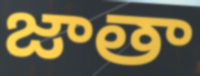
జాతా